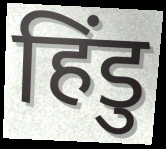
हिंडु